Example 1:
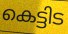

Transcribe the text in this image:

കെട്ടിട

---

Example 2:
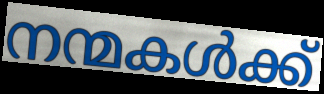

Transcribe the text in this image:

നന്മകൾക്ക്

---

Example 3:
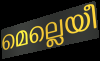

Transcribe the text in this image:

മെല്ലെയീ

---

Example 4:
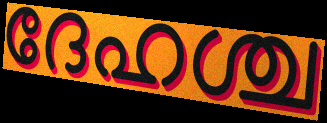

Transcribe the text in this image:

ദേഹശ്ച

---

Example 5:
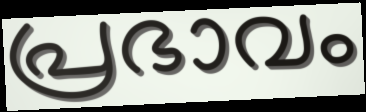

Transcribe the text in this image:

പ്രഭാവം